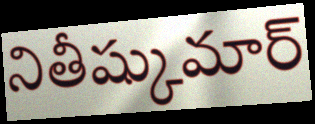
నితీష్కుమార్